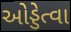
ઓડ્ડેત્વા